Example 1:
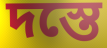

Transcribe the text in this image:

দস্তে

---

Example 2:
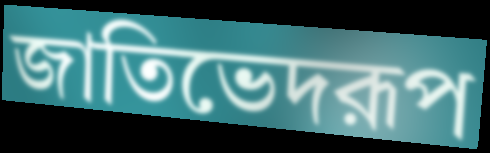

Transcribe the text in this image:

জাতিভেদরূপ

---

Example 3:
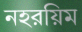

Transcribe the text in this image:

নহরয়িম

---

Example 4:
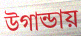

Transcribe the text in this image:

উগান্ডায়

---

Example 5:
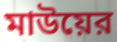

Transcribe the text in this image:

মাউয়ের